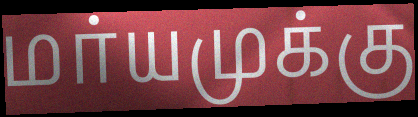
மர்யமுக்கு